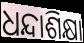
ଧନ୍ଦାଶିକ୍ଷା